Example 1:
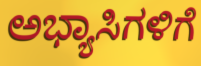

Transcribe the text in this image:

ಅಭ್ಯಾಸಿಗಳಿಗೆ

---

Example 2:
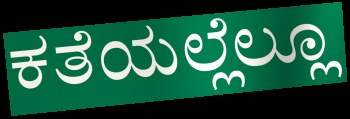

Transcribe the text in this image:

ಕತೆಯಲ್ಲೆಲ್ಲೂ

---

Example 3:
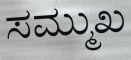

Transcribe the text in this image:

ಸಮ್ಮುಖ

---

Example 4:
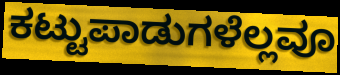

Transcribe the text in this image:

ಕಟ್ಟುಪಾಡುಗಳೆಲ್ಲವೂ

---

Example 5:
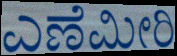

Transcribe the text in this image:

ಎಣೆಮೀರಿ